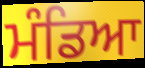
ਮੰਡਿਆ